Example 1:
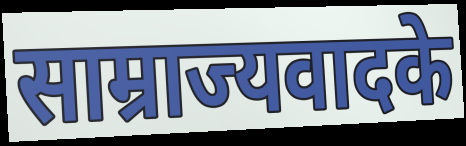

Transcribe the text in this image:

साम्राज्यवादके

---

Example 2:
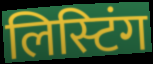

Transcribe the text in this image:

लिस्‍टिंग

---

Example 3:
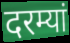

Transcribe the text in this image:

दरम्यां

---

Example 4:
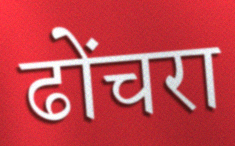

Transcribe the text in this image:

ढोंचरा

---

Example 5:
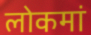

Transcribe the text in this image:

लोकमां